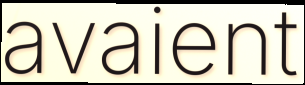
avaient